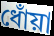
ধোঁয়া